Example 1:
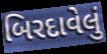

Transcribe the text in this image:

બિરદાવેલું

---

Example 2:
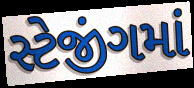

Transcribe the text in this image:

સ્ટેજીંગમાં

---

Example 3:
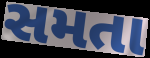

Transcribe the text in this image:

સમતા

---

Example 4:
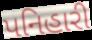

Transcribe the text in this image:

પનિહારી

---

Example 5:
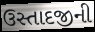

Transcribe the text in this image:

ઉસ્તાદજીની